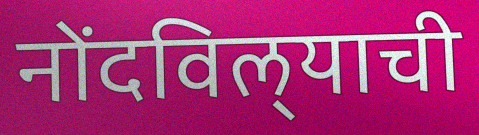
नोंदविल्याची